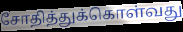
சோதித்துக்கொள்வது